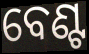
ବେଣ୍ଟ